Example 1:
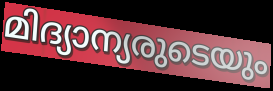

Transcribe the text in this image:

മിദ്യാന്യരുടെയും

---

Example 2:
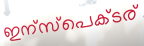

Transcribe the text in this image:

ഇന്സ്പെക്ടര്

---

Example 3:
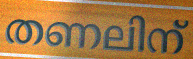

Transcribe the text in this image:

തണലിന്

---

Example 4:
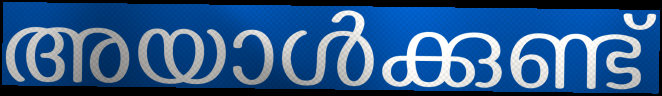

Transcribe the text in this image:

അയാൾക്കുണ്ട്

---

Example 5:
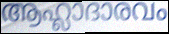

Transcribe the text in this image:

ആഹ്ലാദാരവം